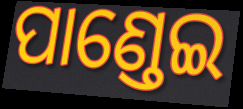
ପାଣ୍ଡେଇ